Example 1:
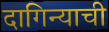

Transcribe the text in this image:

दागिन्याची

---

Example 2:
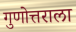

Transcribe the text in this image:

गुणोत्तराला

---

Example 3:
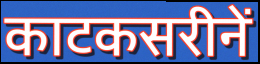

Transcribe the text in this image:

काटकसरीनें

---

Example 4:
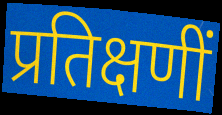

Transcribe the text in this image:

प्रतिक्षणीं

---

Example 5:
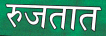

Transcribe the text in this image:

रुजतात